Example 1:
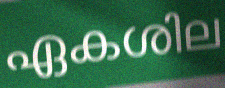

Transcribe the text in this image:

ഏകശില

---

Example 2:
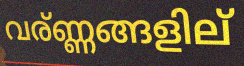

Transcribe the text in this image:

വര്ണ്ണങ്ങളില്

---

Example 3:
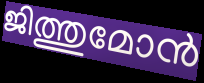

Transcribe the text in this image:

ജിത്തുമോൻ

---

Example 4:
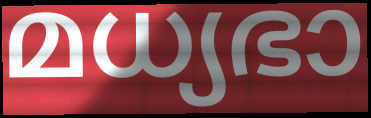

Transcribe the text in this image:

മധ്യഭാ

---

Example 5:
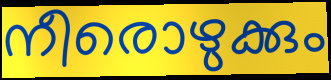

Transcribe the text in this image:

നീരൊഴുക്കും